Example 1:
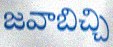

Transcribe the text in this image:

జవాబిచ్చి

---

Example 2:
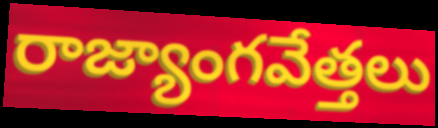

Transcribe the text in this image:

రాజ్యాంగవేత్తలు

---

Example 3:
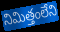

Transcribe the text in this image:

నిమిత్తంలేని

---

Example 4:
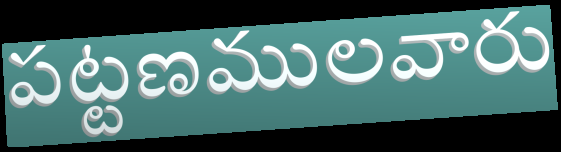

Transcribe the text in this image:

పట్టణములవారు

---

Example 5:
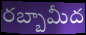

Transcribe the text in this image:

రబ్బామీద